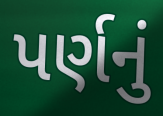
પર્ણનું